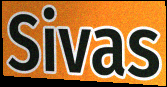
Sivas